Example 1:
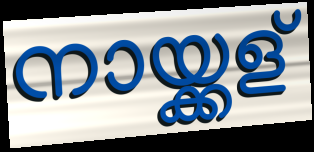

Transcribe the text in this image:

നായ്ക്കള്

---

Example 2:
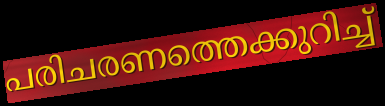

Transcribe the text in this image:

പരിചരണത്തെക്കുറിച്ച്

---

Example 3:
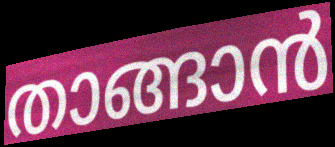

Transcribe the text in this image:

താങ്ങാൻ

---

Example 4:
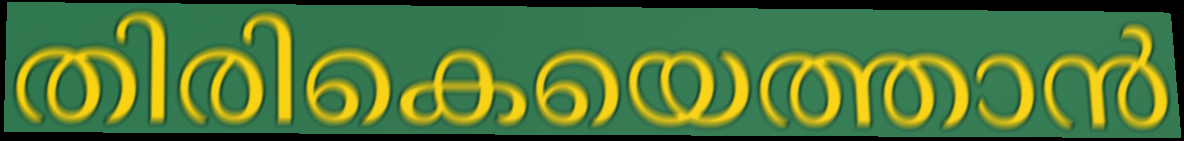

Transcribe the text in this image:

തിരികെയെത്താൻ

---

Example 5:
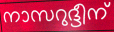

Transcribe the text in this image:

നാസറുദ്ദീന്